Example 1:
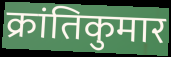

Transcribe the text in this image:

क्रांतिकुमार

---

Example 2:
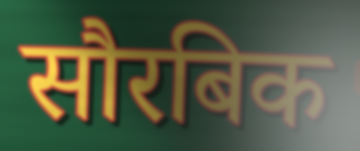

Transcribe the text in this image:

सौरबिक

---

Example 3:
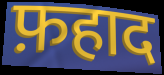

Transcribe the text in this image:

फ़हाद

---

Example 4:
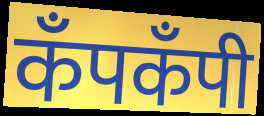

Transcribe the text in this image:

कँपकँपी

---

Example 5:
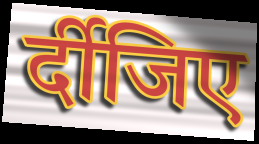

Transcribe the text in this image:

र्दीजिए